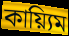
কায়্যিম